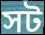
সট